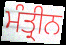
ਮੰਤ੍ਰੀਨ